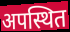
अपस्थित